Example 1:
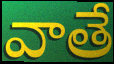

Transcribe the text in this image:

వాతే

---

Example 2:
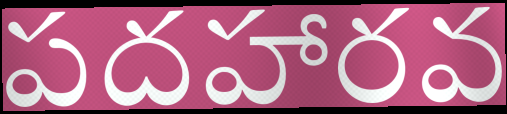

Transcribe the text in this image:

పదహారవ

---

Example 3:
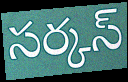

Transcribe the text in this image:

సర్కస్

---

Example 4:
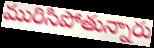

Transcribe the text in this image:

మురిసిపోతున్నారు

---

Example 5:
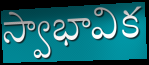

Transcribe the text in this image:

స్వాభావిక